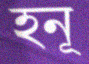
হনূ